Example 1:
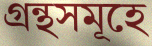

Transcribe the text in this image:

গ্ৰন্থসমূহে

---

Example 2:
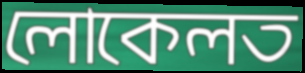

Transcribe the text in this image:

লোকেলত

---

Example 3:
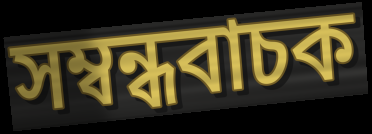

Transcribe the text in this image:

সম্বন্ধবাচক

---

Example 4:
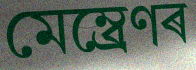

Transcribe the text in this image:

মেম্ব্ৰেণৰ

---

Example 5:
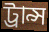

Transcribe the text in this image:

ট্ৰান্স